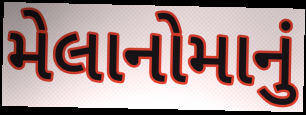
મેલાનોમાનું